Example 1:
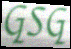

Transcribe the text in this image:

GSG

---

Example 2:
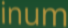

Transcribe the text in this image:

inum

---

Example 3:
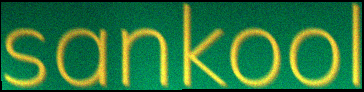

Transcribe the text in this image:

sankool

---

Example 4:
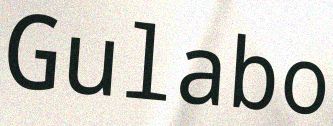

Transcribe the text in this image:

Gulabo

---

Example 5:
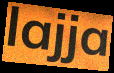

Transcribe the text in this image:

lajja